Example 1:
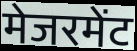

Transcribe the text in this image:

मेजरमेंट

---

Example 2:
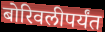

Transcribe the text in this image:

बोरिवलीपर्यंत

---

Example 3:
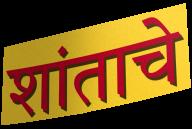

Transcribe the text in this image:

शांताचे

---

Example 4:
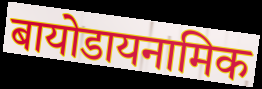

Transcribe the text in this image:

बायोडायनामिक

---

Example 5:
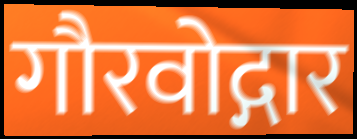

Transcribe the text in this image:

गौरवोद्गार